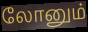
லோனும்